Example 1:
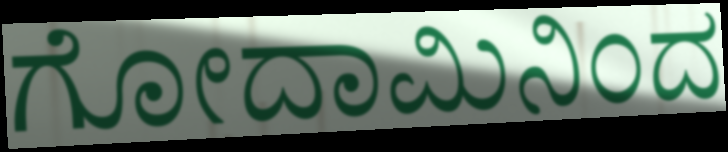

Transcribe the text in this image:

ಗೋದಾಮಿನಿಂದ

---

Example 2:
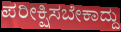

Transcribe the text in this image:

ಪರೀಕ್ಷಿಸಬೇಕಾದ್ದು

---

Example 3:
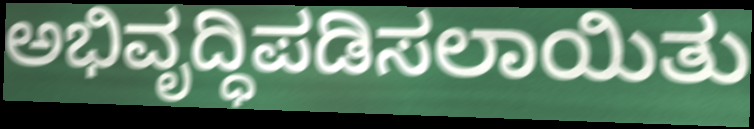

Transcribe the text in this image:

ಅಭಿವೃದ್ಧಿಪಡಿಸಲಾಯಿತು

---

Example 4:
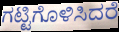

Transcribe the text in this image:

ಗಟ್ಟಿಗೊಳಿಸಿದರೆ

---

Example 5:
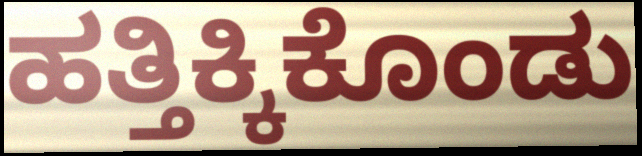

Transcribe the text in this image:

ಹತ್ತಿಕ್ಕಿಕೊಂಡು